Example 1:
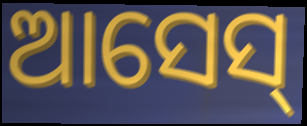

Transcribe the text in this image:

ଆସେସ୍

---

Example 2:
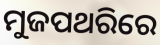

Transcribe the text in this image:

ମୁଜପଥରିରେ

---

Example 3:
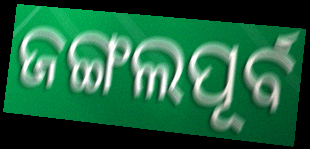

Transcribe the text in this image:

ଜଙ୍ଗଲପୂର୍ବ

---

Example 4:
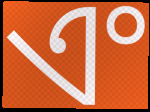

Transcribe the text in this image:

ଏଂ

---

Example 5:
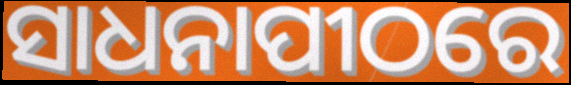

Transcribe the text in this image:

ସାଧନାପୀଠରେ